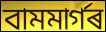
বামমাৰ্গৰ